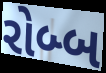
રોબ્બ